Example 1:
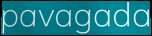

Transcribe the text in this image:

pavagada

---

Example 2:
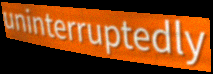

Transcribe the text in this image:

uninterruptedly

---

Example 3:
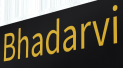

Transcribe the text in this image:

Bhadarvi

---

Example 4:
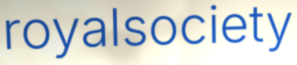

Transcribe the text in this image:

royalsociety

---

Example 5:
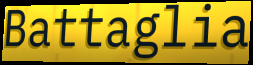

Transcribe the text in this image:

Battaglia